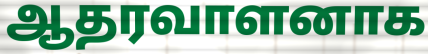
ஆதரவாளனாக